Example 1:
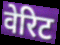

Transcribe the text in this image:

वेरिट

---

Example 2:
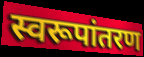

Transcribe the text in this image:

स्वरूपांतरण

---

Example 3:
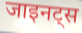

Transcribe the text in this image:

जाइनट्स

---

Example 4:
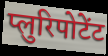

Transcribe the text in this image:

प्लुरिपोटेंट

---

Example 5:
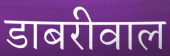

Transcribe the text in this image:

डाबरीवाल